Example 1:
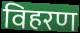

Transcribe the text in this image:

विहरण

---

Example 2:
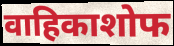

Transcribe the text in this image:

वाहिकाशोफ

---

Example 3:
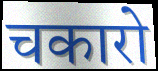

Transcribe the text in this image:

चकारो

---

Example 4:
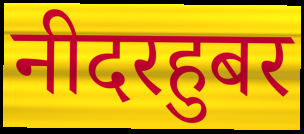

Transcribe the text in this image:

नीदरहुबर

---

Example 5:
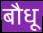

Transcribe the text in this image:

बौधू